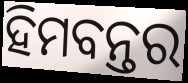
ହିମବନ୍ତର